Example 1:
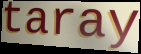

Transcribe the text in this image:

taray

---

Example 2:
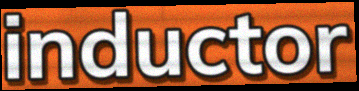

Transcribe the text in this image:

inductor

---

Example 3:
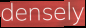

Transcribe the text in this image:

densely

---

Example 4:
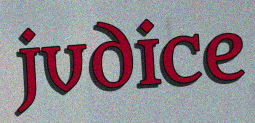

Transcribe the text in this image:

judice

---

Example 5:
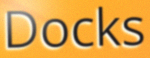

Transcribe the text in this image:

Docks